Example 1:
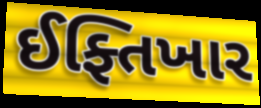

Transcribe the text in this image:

ઈફ્તિખાર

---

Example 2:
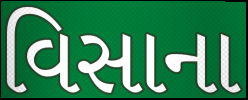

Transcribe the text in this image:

વિસાના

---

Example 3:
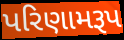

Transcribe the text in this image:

પરિણામરૂપ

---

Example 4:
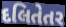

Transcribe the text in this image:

દલિતેતર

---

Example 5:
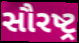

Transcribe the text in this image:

સૌરષ્ટ્ર